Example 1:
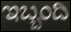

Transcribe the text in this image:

ಇಬ್ಬಂದಿ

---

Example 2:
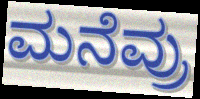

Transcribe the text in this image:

ಮನೆವ್ರು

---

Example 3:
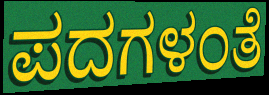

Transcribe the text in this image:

ಪದಗಳಂತೆ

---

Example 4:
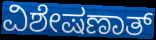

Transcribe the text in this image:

ವಿಶೇಷಣಾತ್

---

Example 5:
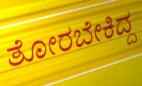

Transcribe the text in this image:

ತೋರಬೇಕಿದ್ದ